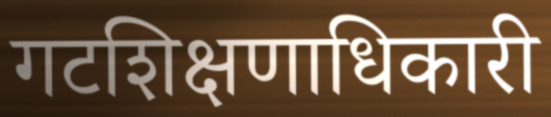
गटशिक्षणाधिकारी